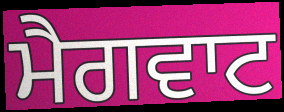
ਮੈਗਵਾਟ